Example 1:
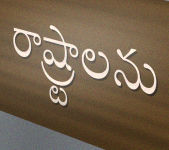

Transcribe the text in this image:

రాష్ర్టాలను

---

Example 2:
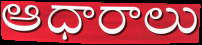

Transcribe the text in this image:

ఆధారాలు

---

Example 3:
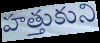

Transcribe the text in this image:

హత్తుకుని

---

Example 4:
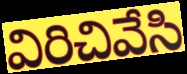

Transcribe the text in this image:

విరిచివేసి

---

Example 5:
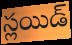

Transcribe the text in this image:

స్లయిడ్